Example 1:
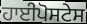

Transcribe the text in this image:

ਹਾਈਪੋਸਟੇਸ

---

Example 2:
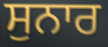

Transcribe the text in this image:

ਸੁਨਾਰ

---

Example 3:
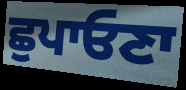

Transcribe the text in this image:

ਛੁਪਾਓਣਾ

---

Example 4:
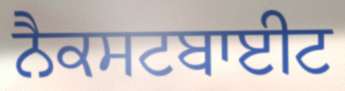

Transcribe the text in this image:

ਨੈਕਸਟਬਾਈਟ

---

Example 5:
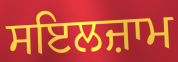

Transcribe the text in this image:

ਸਇਲਜ਼ਾਮ